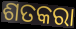
ଶତକରା